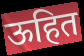
ऊहित